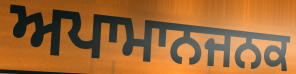
ਅਪਾਮਾਨਜਨਕ